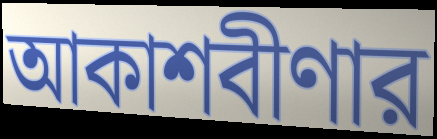
আকাশবীণার